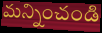
మన్నించండి